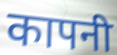
कापनी